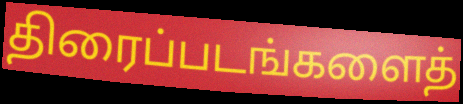
திரைப்படங்களைத்